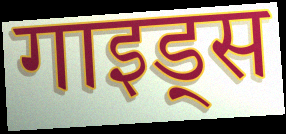
गाइड्स